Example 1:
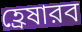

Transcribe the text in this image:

হ্রেষারব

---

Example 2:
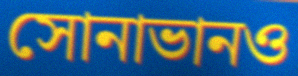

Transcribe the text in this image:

সোনাভানও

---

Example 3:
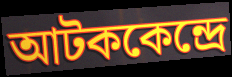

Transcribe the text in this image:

আটককেন্দ্রে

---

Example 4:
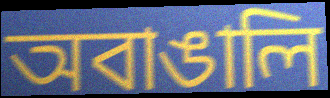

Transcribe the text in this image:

অবাঙালি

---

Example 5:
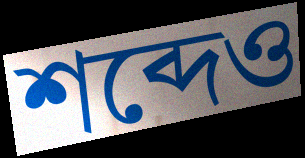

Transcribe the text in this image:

শব্দেও